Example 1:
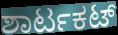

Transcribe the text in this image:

ಶಾರ್ಟಕಟ್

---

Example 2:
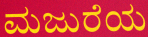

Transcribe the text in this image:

ಮಜುರೆಯ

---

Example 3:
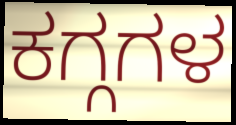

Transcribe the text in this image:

ಕಗ್ಗಗಳ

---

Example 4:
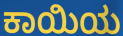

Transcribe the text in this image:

ಕಾಯಿಯ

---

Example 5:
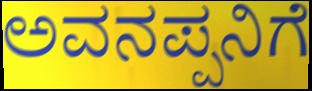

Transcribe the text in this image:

ಅವನಪ್ಪನಿಗೆ